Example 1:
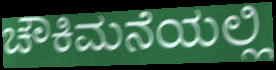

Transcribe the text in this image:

ಚೌಕಿಮನೆಯಲ್ಲಿ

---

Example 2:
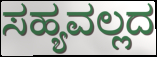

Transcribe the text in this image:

ಸಹ್ಯವಲ್ಲದ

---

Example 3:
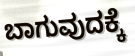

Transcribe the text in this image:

ಬಾಗುವುದಕ್ಕೆ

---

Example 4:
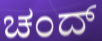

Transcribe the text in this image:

ಚಂದ್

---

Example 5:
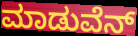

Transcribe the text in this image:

ಮಾಡುವೆನ್